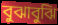
বুঝাবুঝি